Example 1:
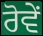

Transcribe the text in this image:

ਰੋਵੇਂ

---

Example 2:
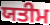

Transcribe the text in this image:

ਯਤੀਮ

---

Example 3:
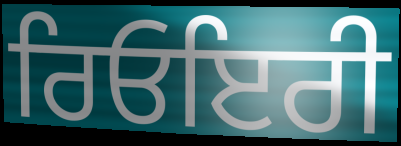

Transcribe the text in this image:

ਰਿਓਇਰੀ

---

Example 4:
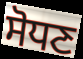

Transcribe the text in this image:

ਸੋਧਣ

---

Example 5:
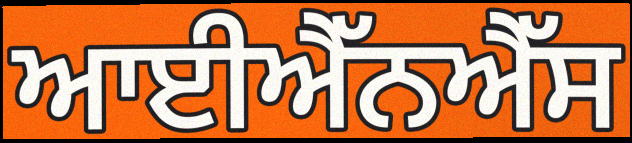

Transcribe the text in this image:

ਆਈਐੱਨਐੱਸ